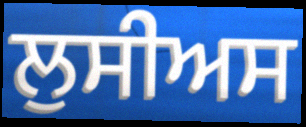
ਲੁਸੀਅਸ